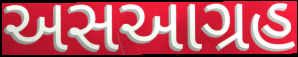
અસઆગ્રહ